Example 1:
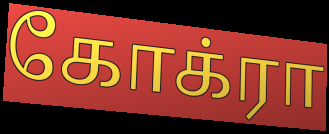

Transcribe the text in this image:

கோக்ரா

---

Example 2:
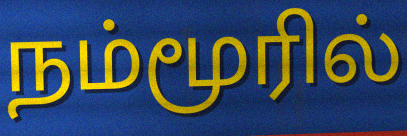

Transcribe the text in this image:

நம்மூரில்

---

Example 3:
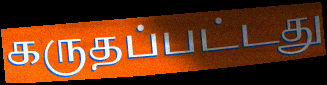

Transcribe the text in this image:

கருதப்பட்டது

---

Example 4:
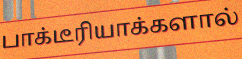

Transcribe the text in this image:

பாக்டீரியாக்களால்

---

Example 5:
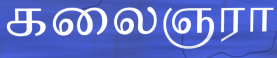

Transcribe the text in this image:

கலைஞரா